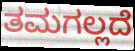
ತಮಗಲ್ಲದೆ